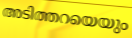
അടിത്തറയെയും